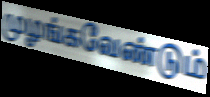
முழங்கவேண்டும்